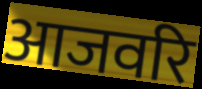
आजवरि